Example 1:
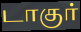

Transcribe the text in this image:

டாகுர்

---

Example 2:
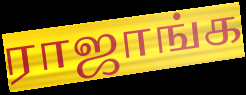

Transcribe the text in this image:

ராஜாங்க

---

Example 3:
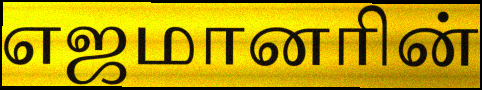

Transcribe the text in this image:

எஜமானரின்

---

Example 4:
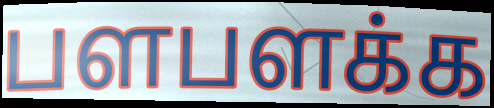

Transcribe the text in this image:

பளபளக்க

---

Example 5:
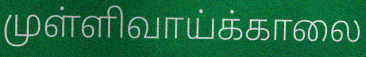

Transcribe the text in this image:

முள்ளிவாய்க்காலை